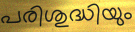
പരിശുദ്ധിയും